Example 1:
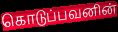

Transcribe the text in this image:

கொடுப்பவனின்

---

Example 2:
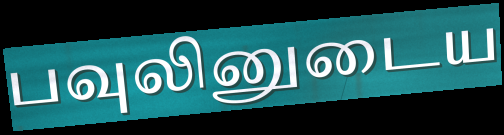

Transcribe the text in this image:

பவுலினுடைய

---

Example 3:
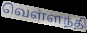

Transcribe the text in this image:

வெள்ளந்தி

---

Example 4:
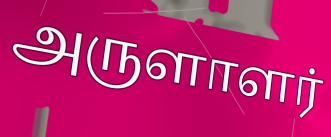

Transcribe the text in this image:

அருளாளர்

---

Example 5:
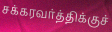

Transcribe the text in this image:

சக்கரவர்த்திக்குச்